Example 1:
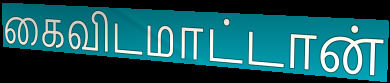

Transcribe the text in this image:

கைவிடமாட்டான்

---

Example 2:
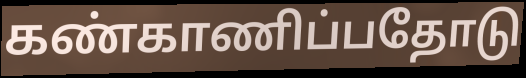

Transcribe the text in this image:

கண்காணிப்பதோடு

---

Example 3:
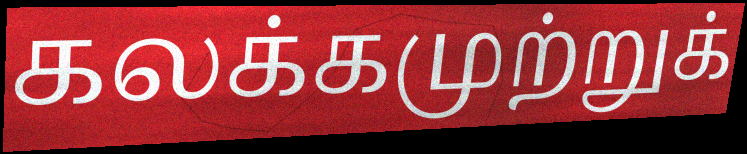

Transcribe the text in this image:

கலக்கமுற்றுக்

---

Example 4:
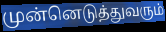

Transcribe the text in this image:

முன்னெடுத்துவரும்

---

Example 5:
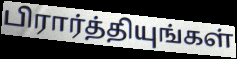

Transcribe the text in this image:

பிரார்த்தியுங்கள்